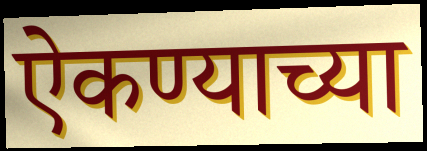
ऐकण्याच्या